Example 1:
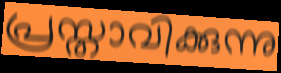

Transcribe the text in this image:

പ്രസ്താവിക്കുന്നു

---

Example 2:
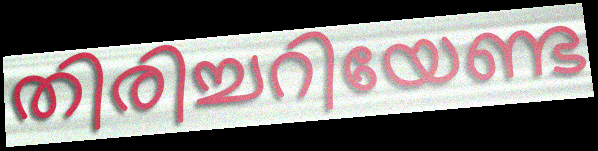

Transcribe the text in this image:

തിരിച്ചറിയേണ്ട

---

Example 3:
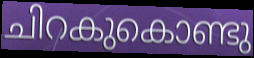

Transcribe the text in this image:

ചിറകുകൊണ്ടു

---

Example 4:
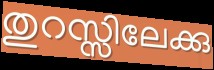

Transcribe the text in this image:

തുറസ്സിലേക്കു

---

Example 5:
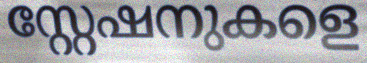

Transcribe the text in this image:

സ്റ്റേഷനുകളെ